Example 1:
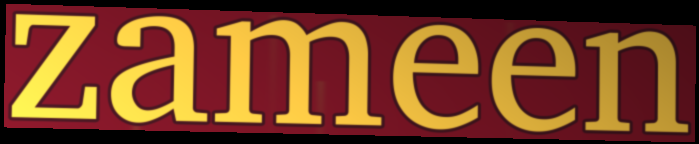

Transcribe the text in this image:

zameen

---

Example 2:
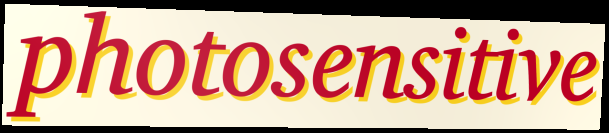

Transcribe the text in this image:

photosensitive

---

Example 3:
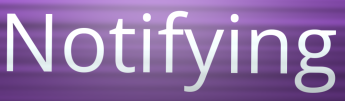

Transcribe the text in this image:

Notifying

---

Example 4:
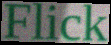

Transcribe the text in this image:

Flick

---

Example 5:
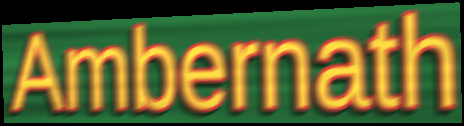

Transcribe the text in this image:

Ambernath